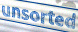
unsorted